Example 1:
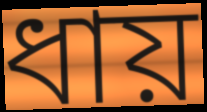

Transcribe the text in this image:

ধায়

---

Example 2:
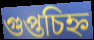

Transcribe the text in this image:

গুপ্তচিহ্ন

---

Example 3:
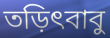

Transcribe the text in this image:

তড়িৎবাবু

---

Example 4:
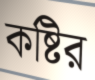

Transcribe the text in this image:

কষ্টির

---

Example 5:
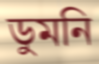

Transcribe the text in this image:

ডুমনি